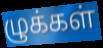
ழுக்கள்